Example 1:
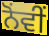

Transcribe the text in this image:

ਨੋਂਵੀਂ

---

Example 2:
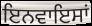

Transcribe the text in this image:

ਇਨਵਾਇਸਾਂ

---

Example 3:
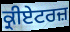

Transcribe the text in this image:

ਕ੍ਰੀਏਟਰਜ਼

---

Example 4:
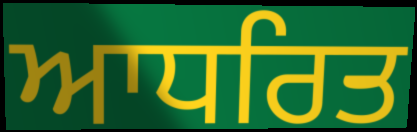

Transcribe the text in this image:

ਆਧਰਿਤ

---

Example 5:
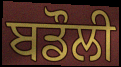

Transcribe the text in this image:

ਬਡੌਲੀ